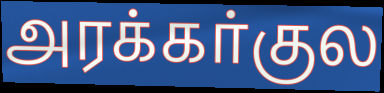
அரக்கர்குல